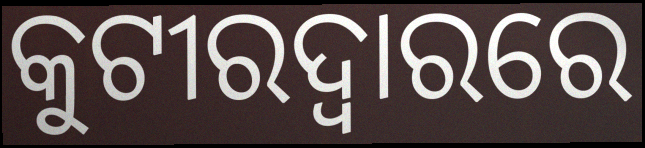
କୁଟୀରଦ୍ୱାରରେ